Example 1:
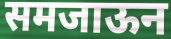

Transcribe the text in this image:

समजाऊन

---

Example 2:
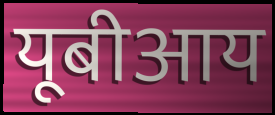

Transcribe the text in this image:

यूबीआय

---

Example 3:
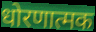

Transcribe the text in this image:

धोरणात्मक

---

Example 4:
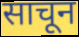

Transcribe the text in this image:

साचून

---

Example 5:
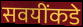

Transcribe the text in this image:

सवयींकडे